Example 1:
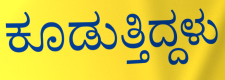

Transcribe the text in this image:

ಕೂಡುತ್ತಿದ್ದಳು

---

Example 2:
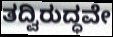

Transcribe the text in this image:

ತದ್ವಿರುದ್ಧವೇ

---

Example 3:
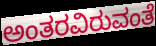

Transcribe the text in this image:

ಅಂತರವಿರುವಂತೆ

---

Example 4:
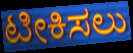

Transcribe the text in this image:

ಟೀಕಿಸಲು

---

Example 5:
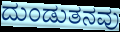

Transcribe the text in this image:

ದುಂಡುತನವು